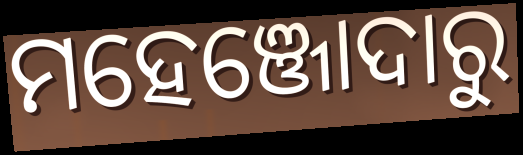
ମହେଞ୍ଜୋଦାରୁ